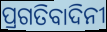
ପ୍ରଗତିବାଦିନୀ